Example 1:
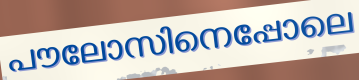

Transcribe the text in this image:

പൗലോസിനെപ്പോലെ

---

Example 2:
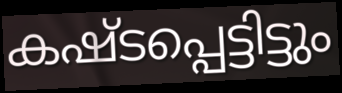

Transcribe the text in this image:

കഷ്ടപ്പെട്ടിട്ടും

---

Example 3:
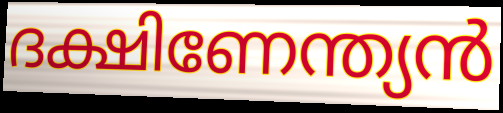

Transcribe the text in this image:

ദക്ഷിണേന്ത്യൻ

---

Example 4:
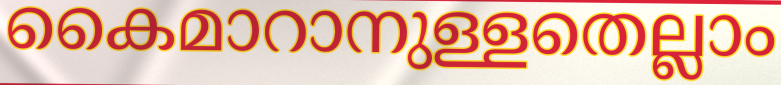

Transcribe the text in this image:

കൈമാറാനുള്ളതെല്ലാം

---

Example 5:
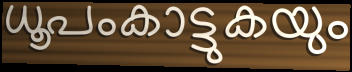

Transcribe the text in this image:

ധൂപംകാട്ടുകയും